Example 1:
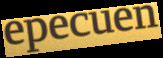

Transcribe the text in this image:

epecuen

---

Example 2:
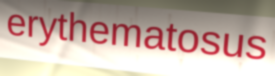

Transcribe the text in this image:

erythematosus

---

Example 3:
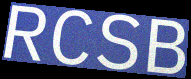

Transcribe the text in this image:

RCSB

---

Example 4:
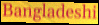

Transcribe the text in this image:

Bangladeshi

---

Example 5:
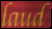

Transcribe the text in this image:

laud